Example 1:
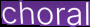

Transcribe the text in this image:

choral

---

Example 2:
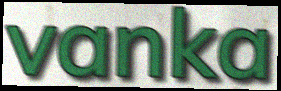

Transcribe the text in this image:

vanka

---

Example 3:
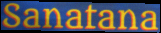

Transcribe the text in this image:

Sanatana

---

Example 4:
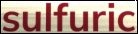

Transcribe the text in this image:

sulfuric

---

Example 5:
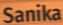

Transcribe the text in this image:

Sanika